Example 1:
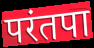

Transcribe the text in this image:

परंतपा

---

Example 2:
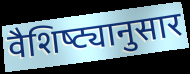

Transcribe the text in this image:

वैशिष्ट्यानुसार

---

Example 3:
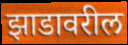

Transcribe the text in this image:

झाडावरील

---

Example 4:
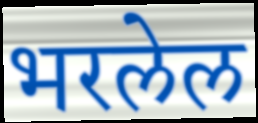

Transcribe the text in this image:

भरलेल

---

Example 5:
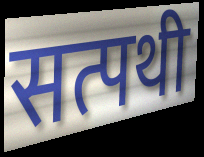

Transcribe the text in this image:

सत्पथी